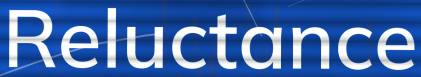
Reluctance